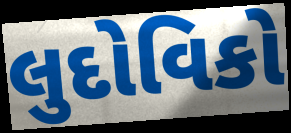
લુદોવિકો